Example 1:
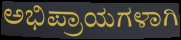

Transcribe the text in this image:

ಅಭಿಪ್ರಾಯಗಳಾಗಿ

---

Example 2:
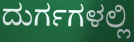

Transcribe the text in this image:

ದುರ್ಗಗಳಲ್ಲಿ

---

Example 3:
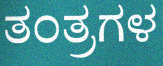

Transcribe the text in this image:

ತಂತ್ರಗಳ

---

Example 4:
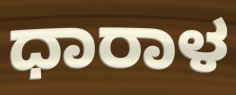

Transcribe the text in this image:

ಧಾರಾಳ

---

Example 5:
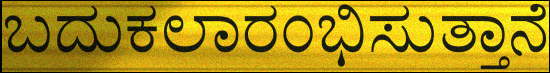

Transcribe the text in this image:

ಬದುಕಲಾರಂಭಿಸುತ್ತಾನೆ